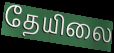
தேயிலை